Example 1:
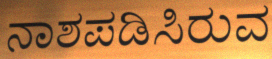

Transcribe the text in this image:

ನಾಶಪಡಿಸಿರುವ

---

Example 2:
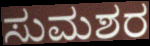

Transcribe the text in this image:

ಸುಮಶರ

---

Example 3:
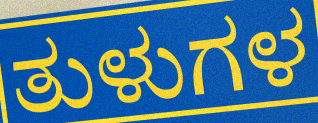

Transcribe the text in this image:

ತುಳುಗಳ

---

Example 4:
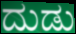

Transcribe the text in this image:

ದುಡು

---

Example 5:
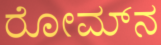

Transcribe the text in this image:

ರೋಮ್‍ನ